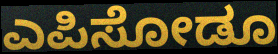
ಎಪಿಸೋಡೂ